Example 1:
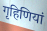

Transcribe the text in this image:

गृहिणियां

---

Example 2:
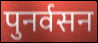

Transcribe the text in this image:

पुनर्वसन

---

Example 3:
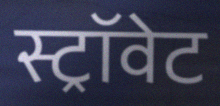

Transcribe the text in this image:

स्ट्रॉवेट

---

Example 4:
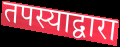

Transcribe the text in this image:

तपस्याद्वारा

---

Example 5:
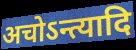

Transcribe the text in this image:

अचोऽन्त्यादि